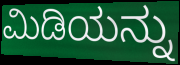
ಮಿಡಿಯನ್ನು